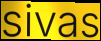
sivas